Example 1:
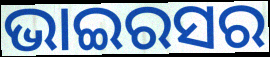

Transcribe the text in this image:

ଭାଇରସର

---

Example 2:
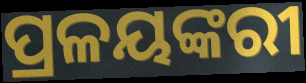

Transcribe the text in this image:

ପ୍ରଳୟଙ୍କରୀ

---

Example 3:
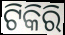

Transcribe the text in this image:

ଟିକିରି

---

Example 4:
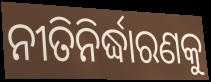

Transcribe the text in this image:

ନୀତିନିର୍ଦ୍ଧାରଣକୁ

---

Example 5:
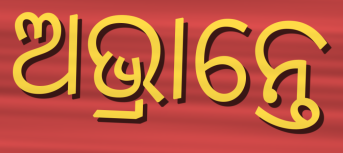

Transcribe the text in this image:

ଅଭ୍ରାନ୍ତେ